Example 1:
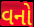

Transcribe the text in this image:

વનો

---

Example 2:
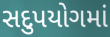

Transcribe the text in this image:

સદુપયોગમાં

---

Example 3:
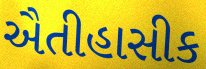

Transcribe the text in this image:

ઐતીહાસીક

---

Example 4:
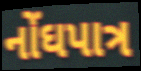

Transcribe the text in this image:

નોંઘપાત્ર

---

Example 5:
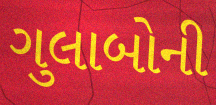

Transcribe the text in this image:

ગુલાબોની